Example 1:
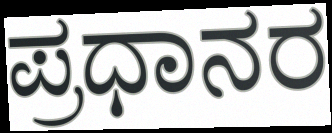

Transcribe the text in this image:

ಪ್ರಧಾನರ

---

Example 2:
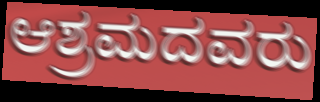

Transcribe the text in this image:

ಆಶ್ರಮದವರು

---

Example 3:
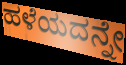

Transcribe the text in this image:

ಹಳೆಯದನ್ನೇ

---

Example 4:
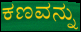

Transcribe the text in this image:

ಕಣವನ್ನು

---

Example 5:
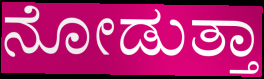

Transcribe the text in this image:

ನೋಡುತ್ತಾ